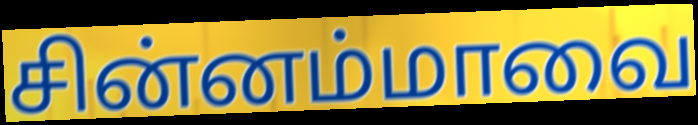
சின்னம்மாவை